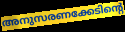
അനുസരണക്കേടിന്റെ